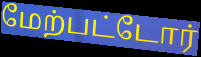
மேற்பட்டோர்